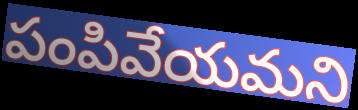
పంపివేయమని